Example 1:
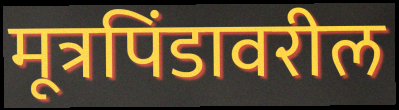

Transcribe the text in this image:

मूत्रपिंडावरील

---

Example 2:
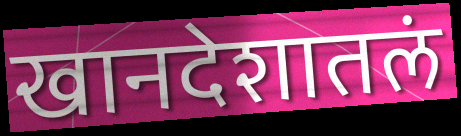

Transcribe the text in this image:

खानदेशातलं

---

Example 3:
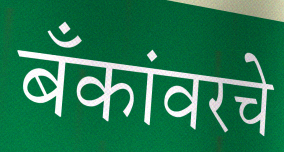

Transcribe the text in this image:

बँकांवरचे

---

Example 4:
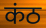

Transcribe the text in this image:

कंठ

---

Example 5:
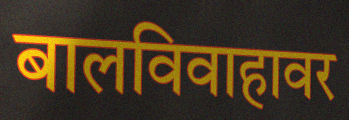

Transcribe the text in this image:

बालविवाहावर